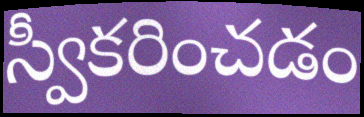
స్వీకరించడం